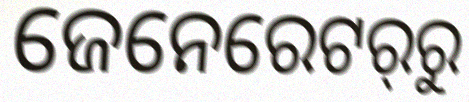
ଜେନେରେଟର୍‌ରୁ